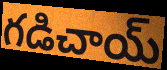
గడిచాయ్